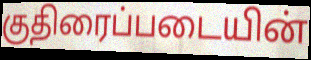
குதிரைப்படையின்